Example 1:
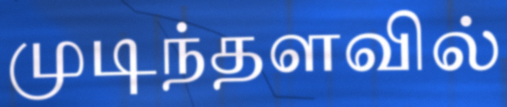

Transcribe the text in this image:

முடிந்தளவில்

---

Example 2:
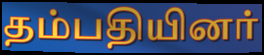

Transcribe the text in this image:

தம்பதியினர்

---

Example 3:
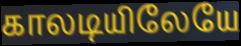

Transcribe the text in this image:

காலடியிலேயே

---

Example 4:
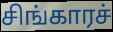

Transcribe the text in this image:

சிங்காரச்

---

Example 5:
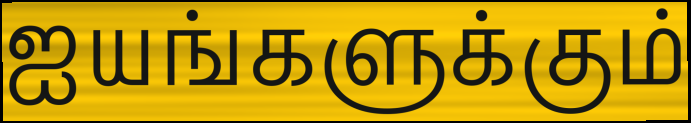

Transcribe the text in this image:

ஐயங்களுக்கும்